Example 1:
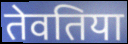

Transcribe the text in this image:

तेवतिया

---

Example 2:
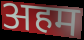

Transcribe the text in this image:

अहम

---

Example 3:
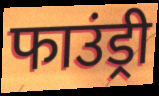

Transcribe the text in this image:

फाउंड्री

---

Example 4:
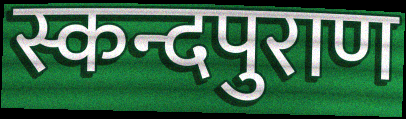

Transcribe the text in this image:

स्कन्दपुराण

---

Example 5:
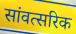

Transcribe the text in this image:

सांवत्सरिक